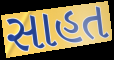
સાહત